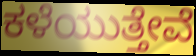
ಕಳೆಯುತ್ತೇವೆ